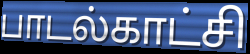
பாடல்காட்சி